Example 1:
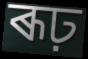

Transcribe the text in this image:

ৰূঢ়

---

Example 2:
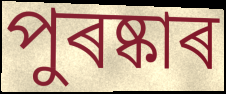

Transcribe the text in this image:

পুৰষ্কাৰ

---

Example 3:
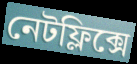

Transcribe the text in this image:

নেটফ্লিক্সে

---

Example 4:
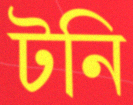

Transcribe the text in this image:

টনি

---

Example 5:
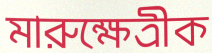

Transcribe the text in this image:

মাৰুক্ষেত্ৰীক